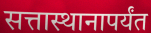
सत्तास्थानापर्यंत